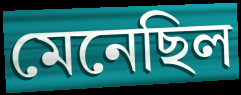
মেনেছিল